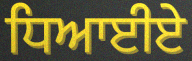
ਧਿਆਈਏ